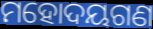
ମହୋଦୟଗଣ